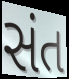
સંત